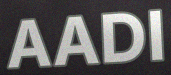
AADI